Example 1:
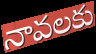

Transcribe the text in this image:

నావలకు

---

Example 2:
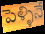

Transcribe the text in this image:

పెళ్ళినే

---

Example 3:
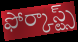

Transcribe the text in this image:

ఫోర్కాస్ట్స్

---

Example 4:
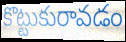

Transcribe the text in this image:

కొట్టుకురావడం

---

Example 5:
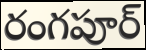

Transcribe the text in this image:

రంగపూర్